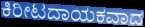
ಕಿರೀಟದಾಯಕವಾದ